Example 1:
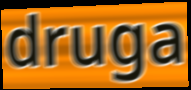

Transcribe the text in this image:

druga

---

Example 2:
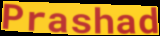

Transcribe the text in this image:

Prashad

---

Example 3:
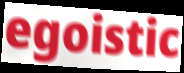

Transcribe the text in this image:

egoistic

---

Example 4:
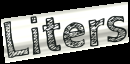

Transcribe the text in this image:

Liters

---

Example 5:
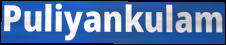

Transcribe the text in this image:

Puliyankulam